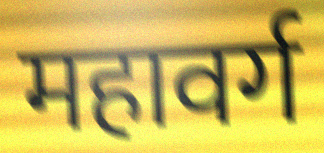
महावर्ग